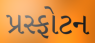
પ્રસ્ફોટન